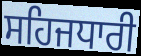
ਸਹਿਜਧਾਰੀ